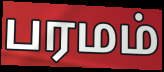
பரமம்